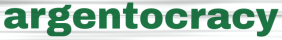
argentocracy